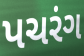
પચરંગ